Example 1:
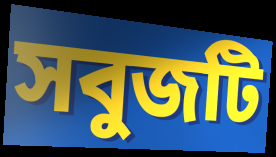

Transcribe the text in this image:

সবুজটি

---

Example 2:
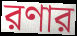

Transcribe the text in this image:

রণার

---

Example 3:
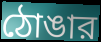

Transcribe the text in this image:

ঠোঙার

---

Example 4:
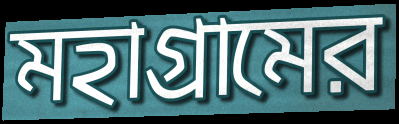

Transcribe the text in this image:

মহাগ্রামের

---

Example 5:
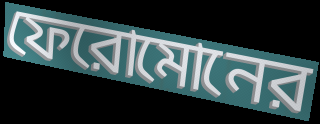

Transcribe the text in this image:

ফেরোমোনের